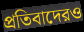
প্রতিবাদেরও